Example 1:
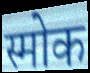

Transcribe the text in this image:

स्मोक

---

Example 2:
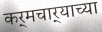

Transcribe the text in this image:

कर्मचार्याच्या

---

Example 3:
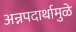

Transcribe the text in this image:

अन्नपदार्थामुळे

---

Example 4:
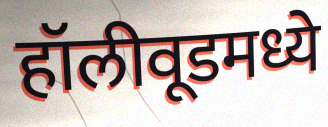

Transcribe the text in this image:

हॉलीवूडमध्ये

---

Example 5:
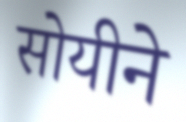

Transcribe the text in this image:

सोयीने